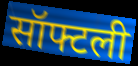
सॉफ्टली